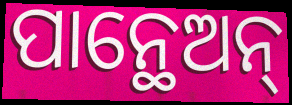
ପାନ୍ଥେଅନ୍